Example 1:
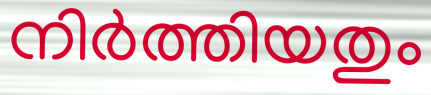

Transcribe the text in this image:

നിർത്തിയതും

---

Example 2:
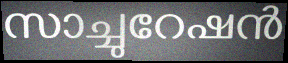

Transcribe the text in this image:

സാച്ചുറേഷൻ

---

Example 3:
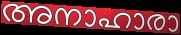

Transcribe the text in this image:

അനാഹാരാ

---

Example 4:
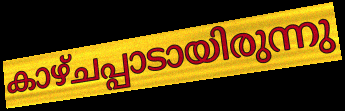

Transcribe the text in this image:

കാഴ്ചപ്പാടായിരുന്നു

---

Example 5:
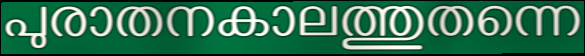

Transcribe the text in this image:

പുരാതനകാലത്തുതന്നെ